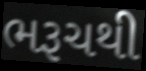
ભરૂચથી